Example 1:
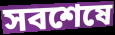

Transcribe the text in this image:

সবশেষে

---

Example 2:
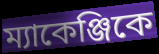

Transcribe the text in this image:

ম্যাকেঞ্জিকে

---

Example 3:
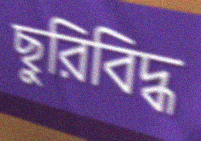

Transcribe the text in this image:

ছুরিবিদ্ধ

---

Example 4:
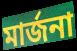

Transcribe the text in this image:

মার্জনা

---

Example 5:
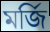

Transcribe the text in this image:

মর্জি